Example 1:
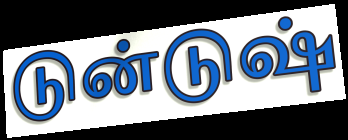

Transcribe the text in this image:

டுன்டுஷ்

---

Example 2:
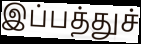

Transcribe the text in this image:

இப்பத்துச்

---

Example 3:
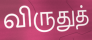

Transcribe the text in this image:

விருதுத்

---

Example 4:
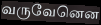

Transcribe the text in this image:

வருவேனென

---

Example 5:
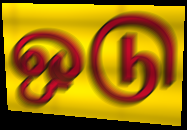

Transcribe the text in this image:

ஒடு